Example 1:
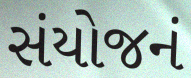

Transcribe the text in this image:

સંયોજનં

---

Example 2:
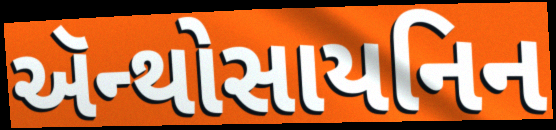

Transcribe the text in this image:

ઍન્થોસાયનિન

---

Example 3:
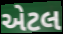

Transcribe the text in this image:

એટલ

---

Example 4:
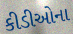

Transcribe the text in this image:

કીડીઓના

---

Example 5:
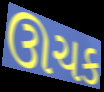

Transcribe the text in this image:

ઊચક